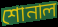
শোনাল